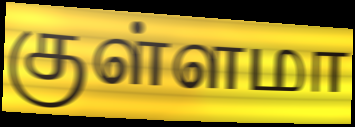
குள்ளமா